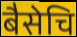
बैसेचि